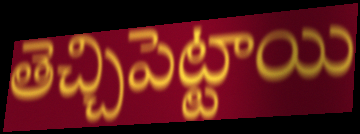
తెచ్చిపెట్టాయి